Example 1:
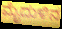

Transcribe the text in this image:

ಮೈದುಳಿನ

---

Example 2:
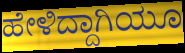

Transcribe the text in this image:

ಹೇಳಿದ್ದಾಗಿಯೂ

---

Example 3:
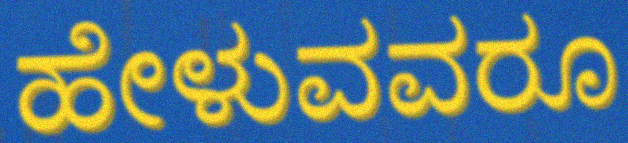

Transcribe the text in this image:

ಹೇಳುವವರೂ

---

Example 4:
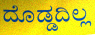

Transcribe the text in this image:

ದೊಡ್ಡದಿಲ್ಲ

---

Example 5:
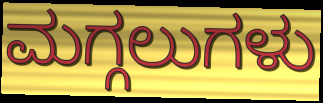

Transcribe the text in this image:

ಮಗ್ಗಲುಗಳು